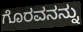
ಗೊರವನನ್ನು